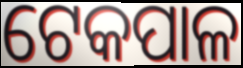
ଟେକପାଳ